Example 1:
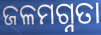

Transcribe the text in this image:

ଜଳମଗ୍ନତା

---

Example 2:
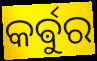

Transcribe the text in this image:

କର୍ଵୁର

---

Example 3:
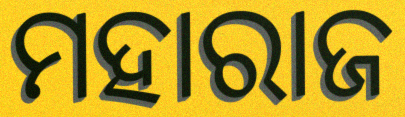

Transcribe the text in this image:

ମହାରାଜ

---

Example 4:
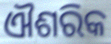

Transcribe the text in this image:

ଐଶରିକ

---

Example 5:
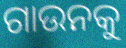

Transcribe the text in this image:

ଗାଉନକୁ